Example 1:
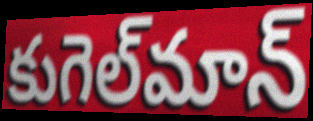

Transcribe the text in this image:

కుగెల్‌మాన్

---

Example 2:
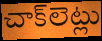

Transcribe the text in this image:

చాక్‌లెట్లు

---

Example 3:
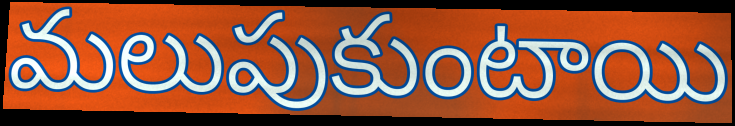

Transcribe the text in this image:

మలుపుకుంటాయి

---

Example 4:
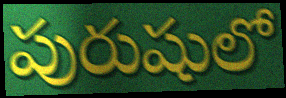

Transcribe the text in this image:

పురుషులో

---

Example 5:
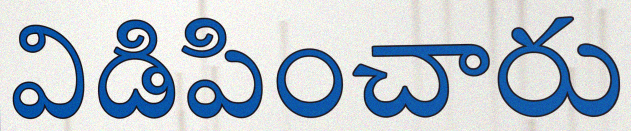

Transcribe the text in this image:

విడిపించారు